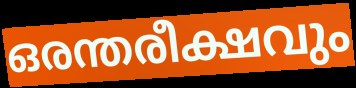
ഒരന്തരീക്ഷവും